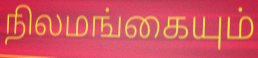
நிலமங்கையும்